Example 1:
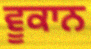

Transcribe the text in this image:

ਵੂਕਾਨ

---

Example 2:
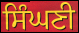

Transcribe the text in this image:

ਸਿੰਘਣੀ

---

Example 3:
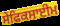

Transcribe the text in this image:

ਸੇਫਿਕਸਾਈਮ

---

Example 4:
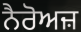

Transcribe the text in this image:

ਨੈਰੋਅਜ਼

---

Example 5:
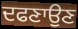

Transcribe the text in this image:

ਦਫਣਾਉਣ